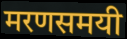
मरणसमयी